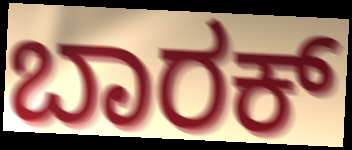
ಬಾರಕ್